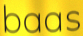
baas